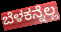
ಬೆಳಕನ್ನೆಲ್ಲ